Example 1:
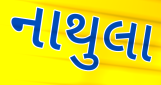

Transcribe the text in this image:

નાથુલા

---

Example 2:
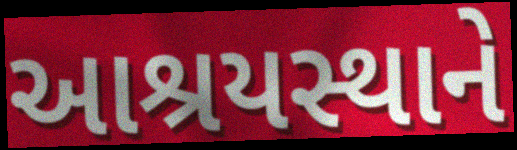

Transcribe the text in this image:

આશ્રયસ્થાને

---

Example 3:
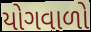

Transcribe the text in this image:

યોગવાળો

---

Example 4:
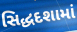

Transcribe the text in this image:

સિદ્ધદશામાં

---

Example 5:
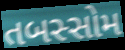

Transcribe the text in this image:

તબસ્સોમ